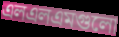
এলএলএমগুলো